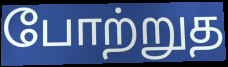
போற்றுத